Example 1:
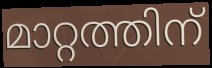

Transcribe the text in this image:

മാറ്റത്തിന്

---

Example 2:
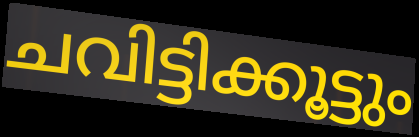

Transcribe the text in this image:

ചവിട്ടിക്കൂട്ടും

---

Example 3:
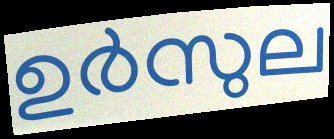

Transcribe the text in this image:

ഉർസുല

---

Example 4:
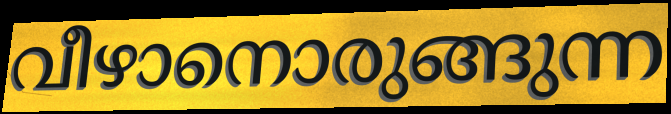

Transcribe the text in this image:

വീഴാനൊരുങ്ങുന്ന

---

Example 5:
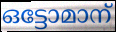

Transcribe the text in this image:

ഒട്ടോമാന്